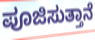
ಪೂಜಿಸುತ್ತಾನೆ